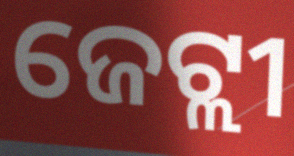
ଜେଟ୍ଲୀ